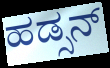
ಹಡ್ಸನ್